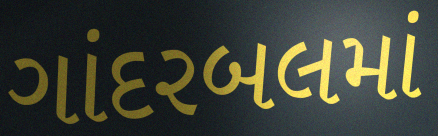
ગાંદરબલમાં